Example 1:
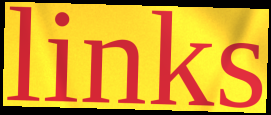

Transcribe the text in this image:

links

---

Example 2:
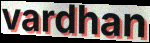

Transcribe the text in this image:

vardhan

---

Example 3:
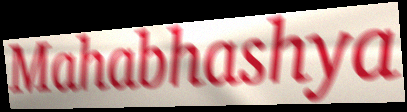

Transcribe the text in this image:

Mahabhashya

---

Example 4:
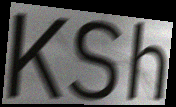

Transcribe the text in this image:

KSh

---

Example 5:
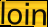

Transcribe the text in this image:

loin